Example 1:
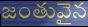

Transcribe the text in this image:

జంతువైన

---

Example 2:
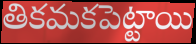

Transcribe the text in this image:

తికమకపెట్టాయి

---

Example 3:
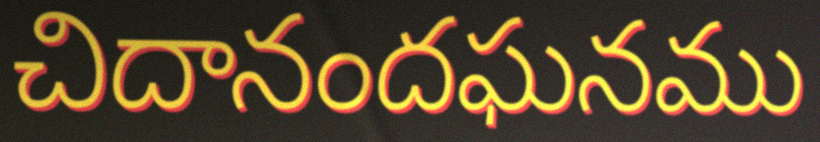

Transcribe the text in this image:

చిదానందఘనము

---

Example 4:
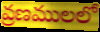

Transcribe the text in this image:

వ్రణములలో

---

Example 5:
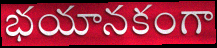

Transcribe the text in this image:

భయానకంగా